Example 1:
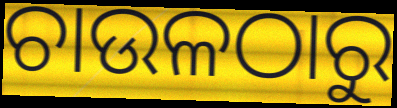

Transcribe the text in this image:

ଚାଉଳଠାରୁ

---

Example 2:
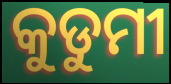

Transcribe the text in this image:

କୁଡୁମୀ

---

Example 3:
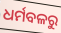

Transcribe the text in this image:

ଧର୍ମବଳରୁ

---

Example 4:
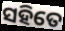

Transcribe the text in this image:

ସହିତେ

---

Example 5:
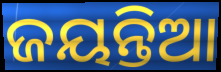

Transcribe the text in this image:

ଜୟନ୍ତିଆ